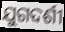
ଯୁଗଦର୍ଶୀ